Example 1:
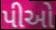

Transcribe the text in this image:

પીઓ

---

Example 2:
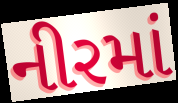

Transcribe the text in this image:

નીરમાં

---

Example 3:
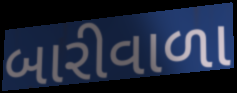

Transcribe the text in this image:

બારીવાળા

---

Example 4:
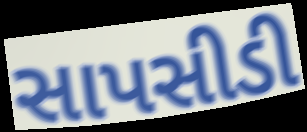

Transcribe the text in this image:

સાપસીડી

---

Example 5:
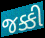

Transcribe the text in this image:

જક્કી